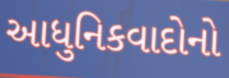
આધુનિકવાદોનો